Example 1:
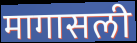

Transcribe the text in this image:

मागासली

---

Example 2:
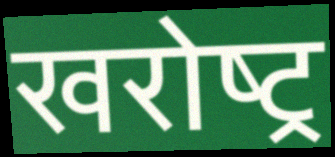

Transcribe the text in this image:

खरोष्ट्र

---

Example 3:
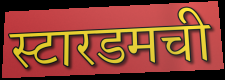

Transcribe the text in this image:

स्टारडमची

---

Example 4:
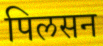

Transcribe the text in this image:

पिलसन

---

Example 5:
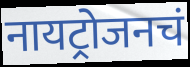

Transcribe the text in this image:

नायट्रोजनचं